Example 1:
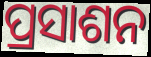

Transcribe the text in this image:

ପ୍ରସାଶନ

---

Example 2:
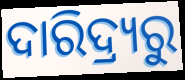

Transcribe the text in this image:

ଦାରିଦ୍ର୍ୟରୁ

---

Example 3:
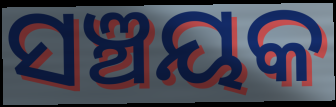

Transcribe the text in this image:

ସଞ୍ଚୟକ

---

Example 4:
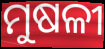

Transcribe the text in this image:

ମୁଷଳୀ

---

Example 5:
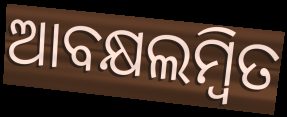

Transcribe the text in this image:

ଆବକ୍ଷଲମ୍ବିତ